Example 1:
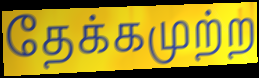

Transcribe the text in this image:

தேக்கமுற்ற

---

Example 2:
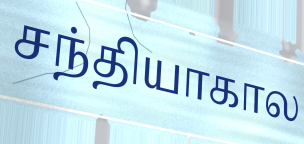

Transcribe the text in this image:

சந்தியாகால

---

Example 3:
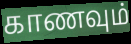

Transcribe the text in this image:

காணவும்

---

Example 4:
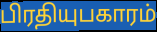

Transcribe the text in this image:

பிரதியுபகாரம்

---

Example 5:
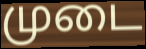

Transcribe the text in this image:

முடை